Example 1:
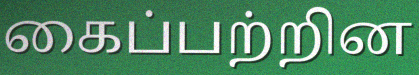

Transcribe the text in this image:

கைப்பற்றின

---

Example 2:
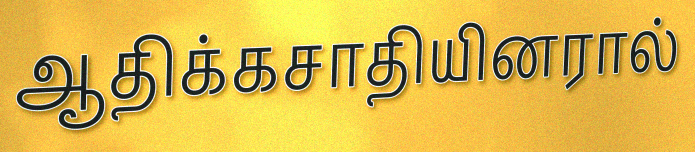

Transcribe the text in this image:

ஆதிக்கசாதியினரால்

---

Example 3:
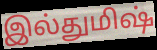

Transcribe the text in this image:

இல்துமிஷ்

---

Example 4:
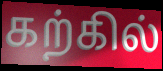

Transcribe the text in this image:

கற்கில்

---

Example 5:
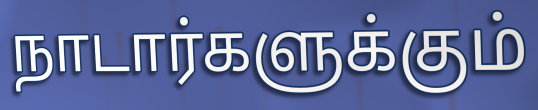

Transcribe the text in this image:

நாடார்களுக்கும்